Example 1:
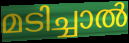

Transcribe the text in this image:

മടിച്ചാൽ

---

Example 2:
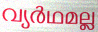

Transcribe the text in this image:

വ്യർഥമല്ല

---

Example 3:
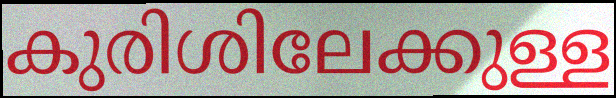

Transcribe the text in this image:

കുരിശിലേക്കുള്ള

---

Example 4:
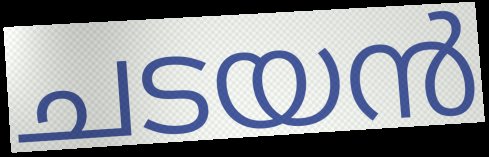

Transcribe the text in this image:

ചടയൻ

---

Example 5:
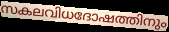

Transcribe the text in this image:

സകലവിധദോഷത്തിനും